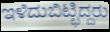
ಇಳಿದುಬಿಟ್ಟಿದ್ದರು